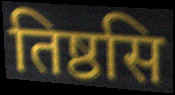
तिष्ठसि